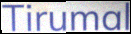
Tirumal